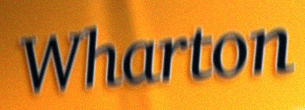
Wharton